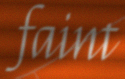
faint